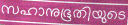
സഹാനുഭൂതിയുടെ